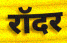
रॉदर